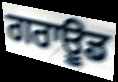
ਗਰਾਊਡ